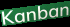
Kanban